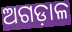
ଅଗଡ଼ାଳ